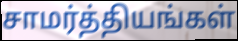
சாமர்த்தியங்கள்